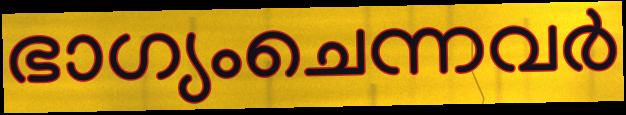
ഭാഗ്യംചെന്നവർ